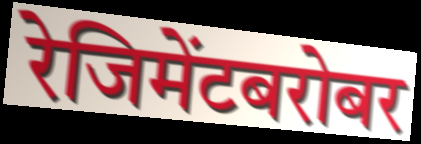
रेजिमेंटबरोबर